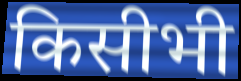
किसीभी